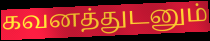
கவனத்துடனும்